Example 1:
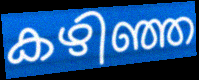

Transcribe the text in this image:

കഴിഞ്ഞ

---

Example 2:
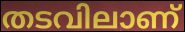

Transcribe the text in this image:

തടവിലാണ്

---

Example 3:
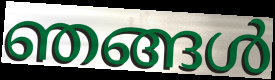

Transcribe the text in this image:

ഞങ്ങൾ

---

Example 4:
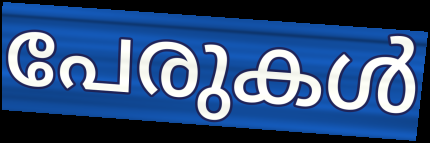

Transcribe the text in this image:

പേരുകൾ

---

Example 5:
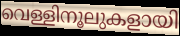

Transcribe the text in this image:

വെള്ളിനൂലുകളായി